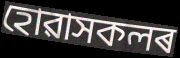
হোৱাসকলৰ